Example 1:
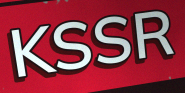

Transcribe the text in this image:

KSSR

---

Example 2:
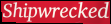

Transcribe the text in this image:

Shipwrecked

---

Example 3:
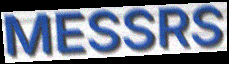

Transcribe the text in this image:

MESSRS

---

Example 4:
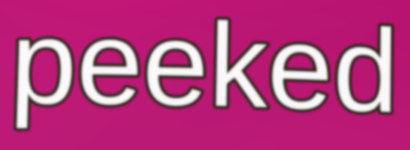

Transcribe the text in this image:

peeked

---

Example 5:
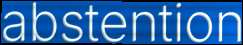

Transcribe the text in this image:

abstention